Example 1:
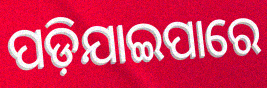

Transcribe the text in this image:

ପଡ଼ିଯାଇପାରେ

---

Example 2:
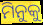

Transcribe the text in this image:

ମିନୁକୁ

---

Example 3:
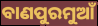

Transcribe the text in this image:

ବାଣପୁରମୁଆଁ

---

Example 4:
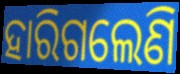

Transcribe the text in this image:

ହାରିଗଲେଣି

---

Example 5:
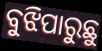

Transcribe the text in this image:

ବୁଝିପାରୁଛୁ